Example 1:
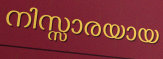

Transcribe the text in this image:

നിസ്സാരയായ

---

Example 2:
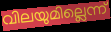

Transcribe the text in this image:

വിലയുമില്ലെന്ന്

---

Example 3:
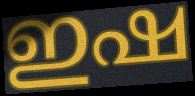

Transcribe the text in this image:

ഇഷ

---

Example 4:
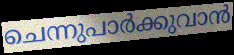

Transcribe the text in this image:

ചെന്നുപാർക്കുവാൻ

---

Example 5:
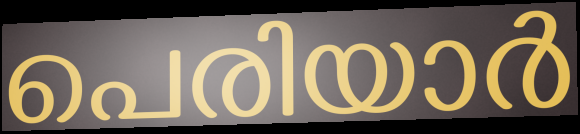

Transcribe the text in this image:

പെരിയാർ